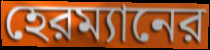
হেরম্যানের